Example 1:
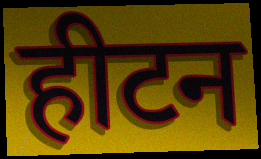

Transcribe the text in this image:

हीटन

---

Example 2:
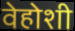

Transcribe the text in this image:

वेहोशी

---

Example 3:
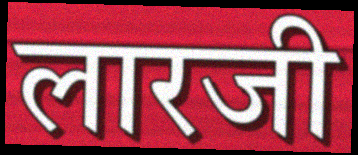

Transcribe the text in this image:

लारजी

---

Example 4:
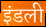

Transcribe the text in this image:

इंडली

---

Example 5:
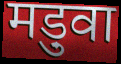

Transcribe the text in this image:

मड़ुवा